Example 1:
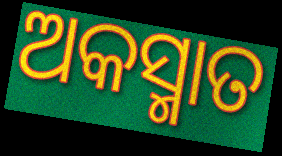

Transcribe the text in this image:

ଅକସ୍ମାତ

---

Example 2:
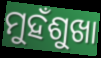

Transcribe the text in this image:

ମୁହଁଶୁଖା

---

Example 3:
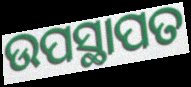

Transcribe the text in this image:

ଉପସ୍ଥାପତ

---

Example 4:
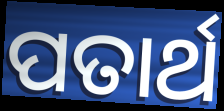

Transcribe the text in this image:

ପତାର୍ଥ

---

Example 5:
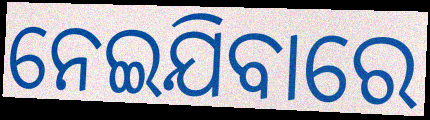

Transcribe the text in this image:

ନେଇଯିବାରେ